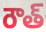
రౌత్